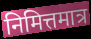
निमित्तमात्र